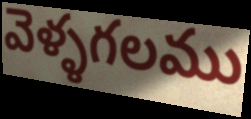
వెళ్ళగలము